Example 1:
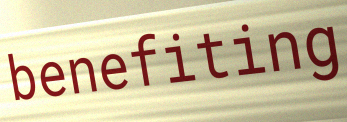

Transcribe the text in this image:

benefiting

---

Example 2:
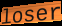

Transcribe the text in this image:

loser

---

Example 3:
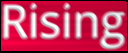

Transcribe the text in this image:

Rising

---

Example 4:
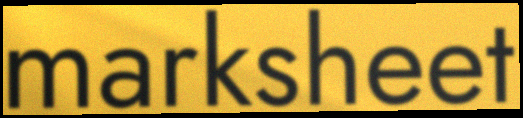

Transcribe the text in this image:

marksheet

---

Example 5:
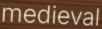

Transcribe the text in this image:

medieval